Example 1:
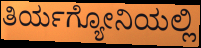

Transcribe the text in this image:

ತಿರ್ಯಗ್ಯೋನಿಯಲ್ಲಿ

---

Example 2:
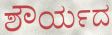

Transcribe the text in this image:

ಶೌರ್ಯದ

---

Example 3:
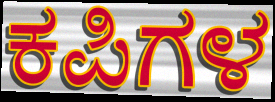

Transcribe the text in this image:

ಕಪಿಗಳ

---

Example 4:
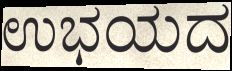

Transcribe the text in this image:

ಉಭಯದ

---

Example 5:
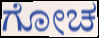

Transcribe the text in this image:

ಗೋಚ